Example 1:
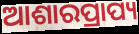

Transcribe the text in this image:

ଆଶାରପ୍ରାପ୍ୟ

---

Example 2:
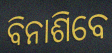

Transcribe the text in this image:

ବିନାଶିବେ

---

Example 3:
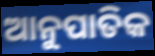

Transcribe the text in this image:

ଆନୁପାତିକ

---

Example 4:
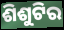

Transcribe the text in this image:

ଶିଶୁଟିର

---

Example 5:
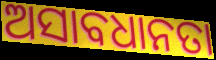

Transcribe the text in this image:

ଅସାବଧାନତା